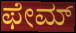
ಫೇಮ್